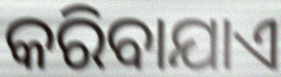
କରିବାଯାଏ